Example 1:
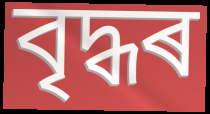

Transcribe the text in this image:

বৃদ্ধৰ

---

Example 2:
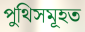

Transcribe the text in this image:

পুথিসমূহত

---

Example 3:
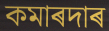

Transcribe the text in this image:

কমাৰদাৰ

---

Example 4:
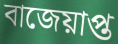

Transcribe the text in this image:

বাজেয়াপ্ত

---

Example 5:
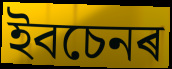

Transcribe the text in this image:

ইবচেনৰ